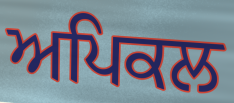
ਅਪਿਕਲ